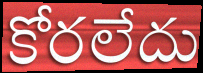
కోరలేదు